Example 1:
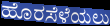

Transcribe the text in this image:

ಹೊರಸೆಳೆಯಲು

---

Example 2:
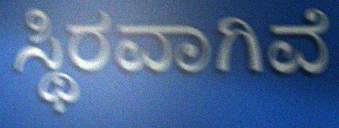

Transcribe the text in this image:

ಸ್ಥಿರವಾಗಿವೆ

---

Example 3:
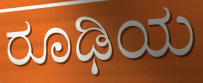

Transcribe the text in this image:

ರೂಢಿಯ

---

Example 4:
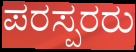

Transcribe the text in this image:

ಪರಸ್ಪರರು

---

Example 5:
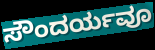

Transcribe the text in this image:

ಸೌಂದರ್ಯವೂ